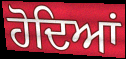
ਹੋਦਿਆਂ